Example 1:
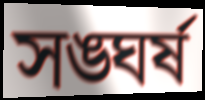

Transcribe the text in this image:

সঙ্ঘর্ষ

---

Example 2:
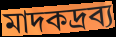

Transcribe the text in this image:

মাদকদ্রব্য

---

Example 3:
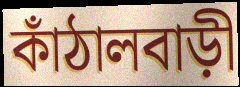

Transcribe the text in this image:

কাঁঠালবাড়ী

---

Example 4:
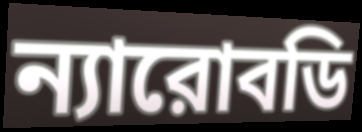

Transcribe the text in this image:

ন্যারোবডি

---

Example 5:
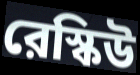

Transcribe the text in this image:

রেস্কিউ